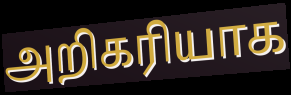
அறிகரியாக